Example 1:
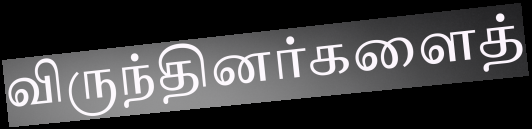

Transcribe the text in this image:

விருந்தினர்களைத்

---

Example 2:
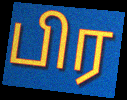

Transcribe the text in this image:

பிர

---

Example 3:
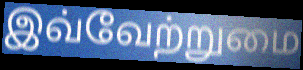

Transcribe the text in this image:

இவ்வேற்றுமை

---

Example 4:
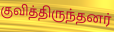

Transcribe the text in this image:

குவித்திருந்தனர்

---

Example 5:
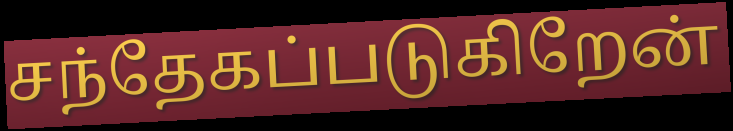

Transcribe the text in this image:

சந்தேகப்படுகிறேன்